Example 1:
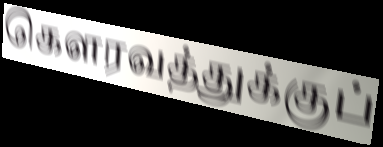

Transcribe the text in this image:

கௌரவத்துக்குப்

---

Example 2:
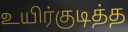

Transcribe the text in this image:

உயிர்குடித்த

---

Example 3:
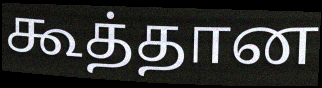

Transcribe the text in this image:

கூத்தான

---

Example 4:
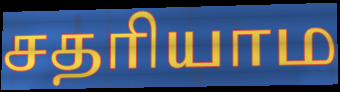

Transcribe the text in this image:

சதரியாம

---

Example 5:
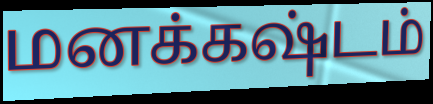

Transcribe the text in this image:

மனக்கஷ்டம்